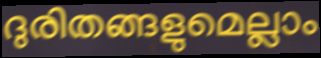
ദുരിതങ്ങളുമെല്ലാം